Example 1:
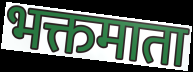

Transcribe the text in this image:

भक्तमाता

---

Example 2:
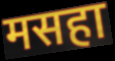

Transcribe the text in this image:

मसहा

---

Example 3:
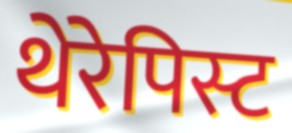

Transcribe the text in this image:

थेरेपिस्‍ट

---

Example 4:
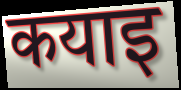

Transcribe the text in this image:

कयाइ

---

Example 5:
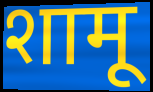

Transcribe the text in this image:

शामू